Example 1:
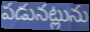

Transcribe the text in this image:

పడునట్లును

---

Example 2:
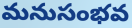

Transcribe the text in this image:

మనుసంభవ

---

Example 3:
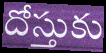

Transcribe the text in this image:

దోస్తుకు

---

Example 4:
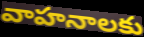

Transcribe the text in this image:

వాహనాలకు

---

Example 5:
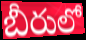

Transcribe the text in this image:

బీరులో